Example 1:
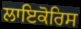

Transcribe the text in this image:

ਲਾਇਕੋਰਿਸ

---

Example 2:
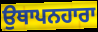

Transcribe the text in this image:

ਉਥਾਪਨਹਾਰਾ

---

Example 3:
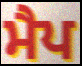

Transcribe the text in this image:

ਮੈਪ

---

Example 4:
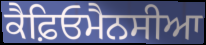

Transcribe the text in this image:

ਕੈਫ਼ਿਓਮੈਨਸੀਆ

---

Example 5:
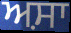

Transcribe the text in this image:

ਅ਼ਸਾ